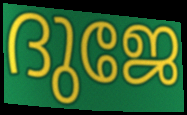
ദുജേ